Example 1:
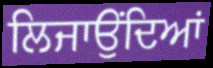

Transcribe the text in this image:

ਲਿਜਾਉਂਦਿਆਂ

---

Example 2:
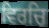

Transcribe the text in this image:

ਵਿਰਚਿ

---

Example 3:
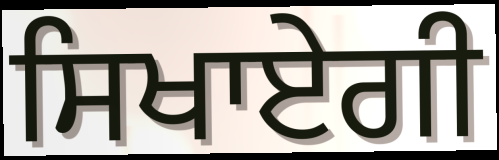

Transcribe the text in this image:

ਸਿਖਾਏਗੀ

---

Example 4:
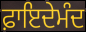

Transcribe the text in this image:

ਫ਼ਾਇਦੇਮੰਦ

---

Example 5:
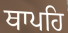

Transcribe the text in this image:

ਥਾਪਹਿ